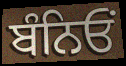
ਬੰਨਿਓਂ